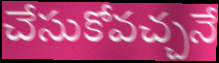
చేసుకోవచ్చనే